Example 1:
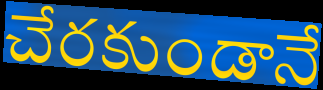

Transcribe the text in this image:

చేరకుండానే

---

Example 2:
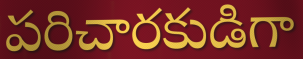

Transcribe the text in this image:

పరిచారకుడిగా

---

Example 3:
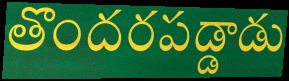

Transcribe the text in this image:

తొందరపడ్డాడు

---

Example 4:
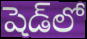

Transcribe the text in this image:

షెడ్‌లో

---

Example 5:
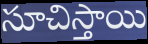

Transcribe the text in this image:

సూచిస్తాయి